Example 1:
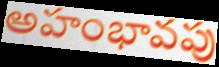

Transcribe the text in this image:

అహంభావపు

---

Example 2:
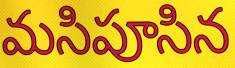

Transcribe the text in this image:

మసిపూసిన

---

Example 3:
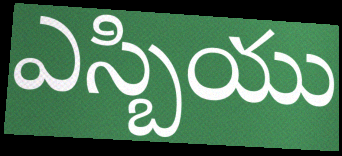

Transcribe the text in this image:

ఎస్బియు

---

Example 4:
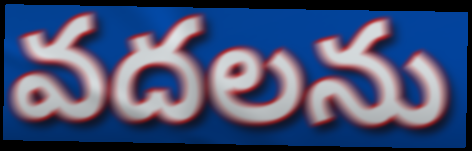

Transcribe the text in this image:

వదలను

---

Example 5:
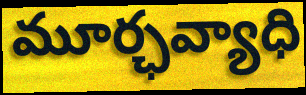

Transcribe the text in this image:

మూర్ఛవ్యాధి